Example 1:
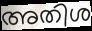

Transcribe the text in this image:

അതിശ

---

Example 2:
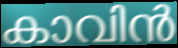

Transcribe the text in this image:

കാവിൻ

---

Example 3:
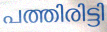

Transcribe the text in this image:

പത്തിരിട്ടി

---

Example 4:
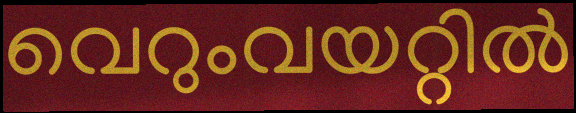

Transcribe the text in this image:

വെറുംവയറ്റിൽ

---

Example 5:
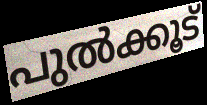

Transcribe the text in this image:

പുൽക്കൂട്